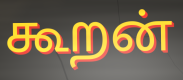
கூறன்